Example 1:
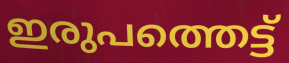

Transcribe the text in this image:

ഇരുപത്തെട്ട്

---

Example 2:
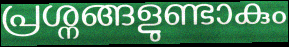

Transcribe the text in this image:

പ്രശ്നങ്ങളുണ്ടാകും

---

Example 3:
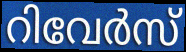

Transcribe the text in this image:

റിവേർസ്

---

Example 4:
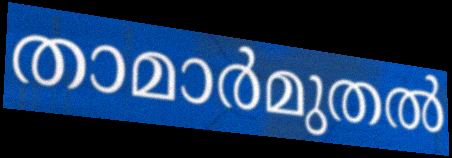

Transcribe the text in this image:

താമാർമുതൽ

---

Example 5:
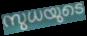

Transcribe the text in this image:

സുധയുടെ